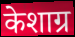
केशाग्र